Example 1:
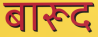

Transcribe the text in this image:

बारूद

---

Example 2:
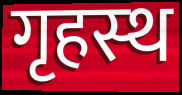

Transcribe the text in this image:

गृहस्‍थ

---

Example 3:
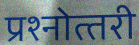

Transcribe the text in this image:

प्रश्‍नोत्‍तरी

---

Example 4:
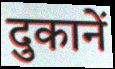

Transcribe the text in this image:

दुकानें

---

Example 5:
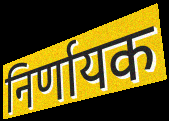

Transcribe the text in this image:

निर्णायक